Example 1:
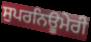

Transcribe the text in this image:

ਸੁਪਰਨਿਊਮੇਰੀ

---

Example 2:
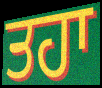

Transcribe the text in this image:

ਤਹਾ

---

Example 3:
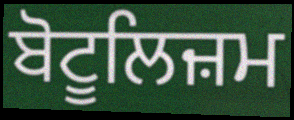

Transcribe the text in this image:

ਬੋਟੂਲਿਜ਼ਮ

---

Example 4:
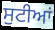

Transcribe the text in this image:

ਸੁਟੀਆਂ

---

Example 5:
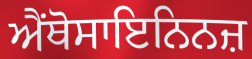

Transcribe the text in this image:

ਐਂਥੋਸਾਇਨਿਨਜ਼